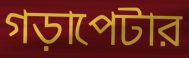
গড়াপেটার